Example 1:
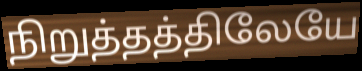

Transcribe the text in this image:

நிறுத்தத்திலேயே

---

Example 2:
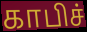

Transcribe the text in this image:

காபிச்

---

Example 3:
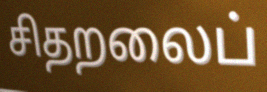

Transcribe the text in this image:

சிதறலைப்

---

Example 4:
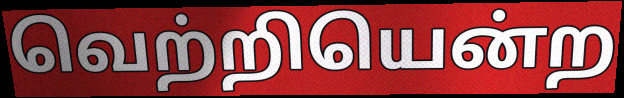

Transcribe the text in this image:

வெற்றியென்ற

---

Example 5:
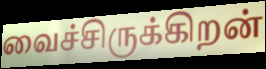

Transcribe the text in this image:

வைச்சிருக்கிறன்